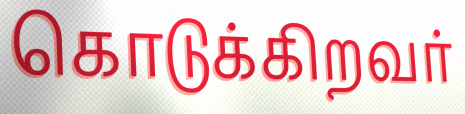
கொடுக்கிறவர்